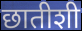
छातीशी